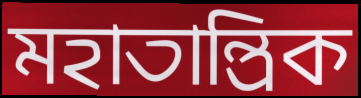
মহাতান্ত্রিক